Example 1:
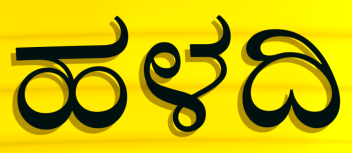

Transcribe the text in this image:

ಹಳದಿ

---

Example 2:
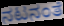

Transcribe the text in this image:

ನಟನಂತೆ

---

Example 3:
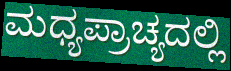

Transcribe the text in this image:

ಮಧ್ಯಪ್ರಾಚ್ಯದಲ್ಲಿ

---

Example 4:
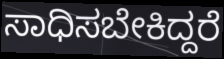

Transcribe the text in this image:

ಸಾಧಿಸಬೇಕಿದ್ದರೆ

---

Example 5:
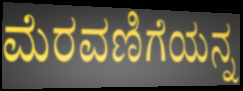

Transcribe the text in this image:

ಮೆರವಣಿಗೆಯನ್ನ